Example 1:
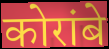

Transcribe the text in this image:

कोरांबे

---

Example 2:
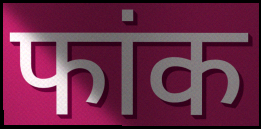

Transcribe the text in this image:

फांक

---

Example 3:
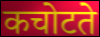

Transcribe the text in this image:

कचोटते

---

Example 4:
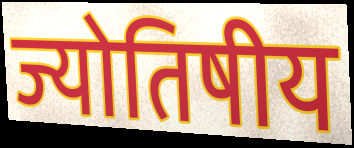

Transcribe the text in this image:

ज्योतिषीय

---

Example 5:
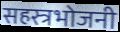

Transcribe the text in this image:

सहस्त्रभोजनी